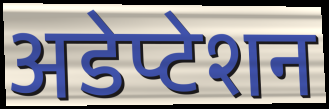
अडेप्टेशन